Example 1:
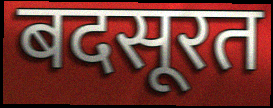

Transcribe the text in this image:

बदसूरत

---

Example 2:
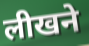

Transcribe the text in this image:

लीखने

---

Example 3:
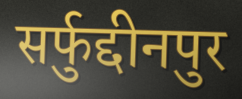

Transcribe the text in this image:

सर्फुद्दीनपुर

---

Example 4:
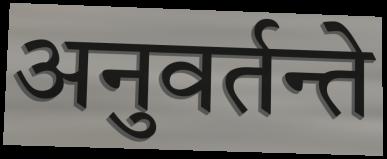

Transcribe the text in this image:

अनुवर्तन्ते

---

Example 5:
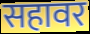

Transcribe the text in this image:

सहावर